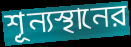
শূন্যস্থানের